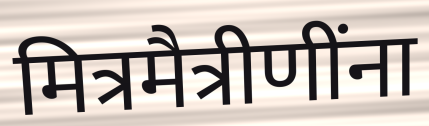
मित्रमैत्रीणींना